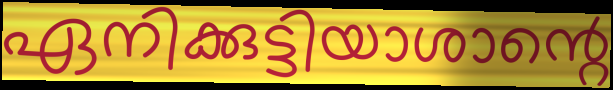
ഏനിക്കുട്ടിയാശാന്റെ